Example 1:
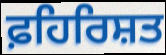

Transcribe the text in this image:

ਫ਼ਹਿਰਿਸ਼ਤ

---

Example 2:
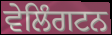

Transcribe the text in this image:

ਵੇਲਿੰਗਟਨ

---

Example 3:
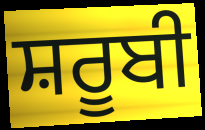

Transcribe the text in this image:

ਸ਼ਰੂਬੀ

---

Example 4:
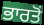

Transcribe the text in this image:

ਭਾਰਤੋਂ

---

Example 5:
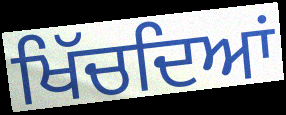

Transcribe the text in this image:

ਖਿੱਚਦਿਆਂ